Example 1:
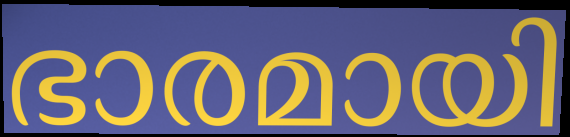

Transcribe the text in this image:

ഭാരമായി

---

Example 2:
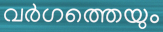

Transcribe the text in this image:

വർഗത്തെയും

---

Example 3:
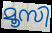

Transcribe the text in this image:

മൂസി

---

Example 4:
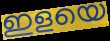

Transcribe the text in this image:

ഇളയെ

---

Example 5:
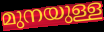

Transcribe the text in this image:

മുനയുള്ള